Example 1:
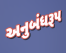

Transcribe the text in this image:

અનુબંધરૂપ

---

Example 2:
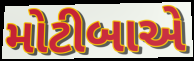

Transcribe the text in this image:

મોટીબાએ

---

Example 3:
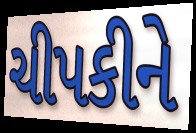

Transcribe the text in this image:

ચીપકીને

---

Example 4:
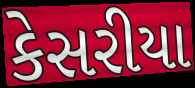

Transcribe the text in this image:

કેસરીયા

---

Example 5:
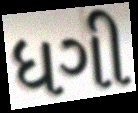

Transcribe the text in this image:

ધગી